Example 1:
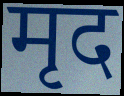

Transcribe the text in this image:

मृद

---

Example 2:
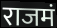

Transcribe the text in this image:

राजमं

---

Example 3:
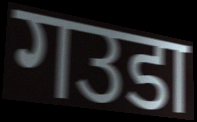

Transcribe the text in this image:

गउडा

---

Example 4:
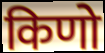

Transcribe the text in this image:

किणो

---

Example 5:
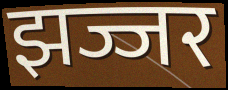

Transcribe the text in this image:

झज्जर